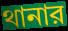
থানার